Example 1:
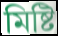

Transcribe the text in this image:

মিষ্টি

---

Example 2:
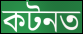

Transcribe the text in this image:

কটনত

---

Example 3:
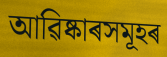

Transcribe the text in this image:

আৱিষ্কাৰসমূহৰ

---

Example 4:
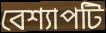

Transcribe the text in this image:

বেশ্যাপটি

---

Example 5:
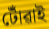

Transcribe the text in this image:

টোঁৱাই